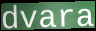
dvara